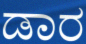
ಡಾರ